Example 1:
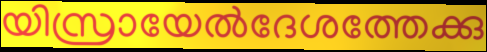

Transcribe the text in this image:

യിസ്രായേൽദേശത്തേക്കു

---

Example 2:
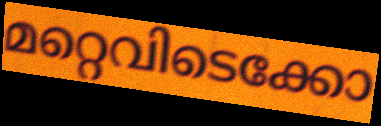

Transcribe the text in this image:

മറ്റെവിടെക്കോ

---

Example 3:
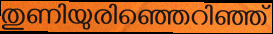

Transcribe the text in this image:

തുണിയുരിഞ്ഞെറിഞ്ഞ്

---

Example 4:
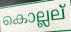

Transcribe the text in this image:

കൊല്ലല്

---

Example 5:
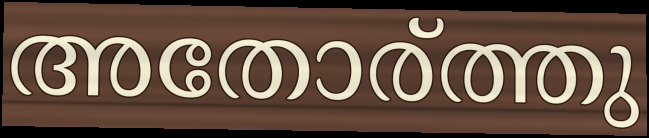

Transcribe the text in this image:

അതോര്ത്തു